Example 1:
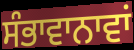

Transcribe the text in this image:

ਸੰਭਾਵਾਨਾਵਾਂ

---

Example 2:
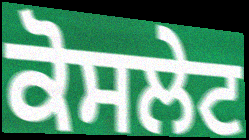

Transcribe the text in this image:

ਕੋਸਲੇਟ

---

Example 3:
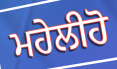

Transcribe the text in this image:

ਮਹੇਲੀਹੋ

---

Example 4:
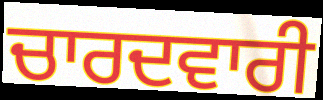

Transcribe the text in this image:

ਚਾਰਦਵਾਰੀ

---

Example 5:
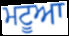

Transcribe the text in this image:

ਮਟੂਆ